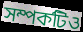
সম্পর্কটিও